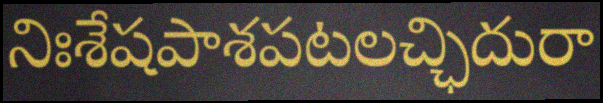
నిఃశేషపాశపటలచ్ఛిదురా